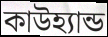
কাউহ্যান্ড